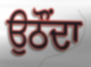
ਉਠੌਂਦਾ